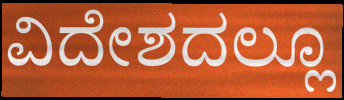
ವಿದೇಶದಲ್ಲೂ